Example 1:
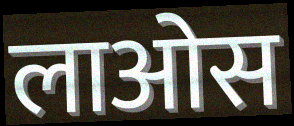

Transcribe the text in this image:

लाओस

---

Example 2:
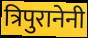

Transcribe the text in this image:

त्रिपुरानेनी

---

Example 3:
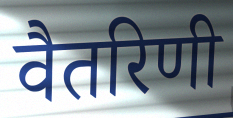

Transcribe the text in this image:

वैतरिणी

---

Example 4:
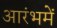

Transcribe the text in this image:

आरंभमें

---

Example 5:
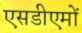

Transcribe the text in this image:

एसडीएमों